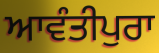
ਆਵੰਤੀਪੁਰਾ